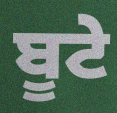
ਬੂਟੇ